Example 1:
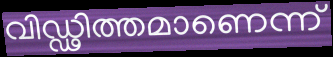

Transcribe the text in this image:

വിഡ്ഢിത്തമാണെന്ന്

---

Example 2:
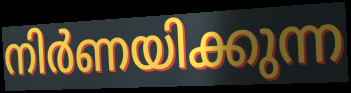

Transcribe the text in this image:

നിർണയിക്കുന്ന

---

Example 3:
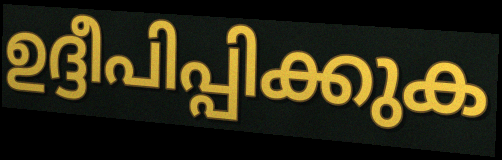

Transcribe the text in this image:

ഉദ്ദീപിപ്പിക്കുക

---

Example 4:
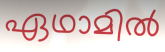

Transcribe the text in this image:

ഏഥാമിൽ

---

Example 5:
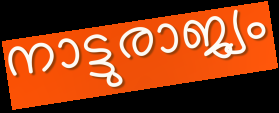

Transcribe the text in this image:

നാട്ടുരാജ്യം